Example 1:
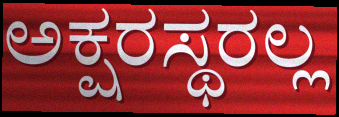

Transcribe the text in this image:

ಅಕ್ಷರಸ್ಥರಲ್ಲ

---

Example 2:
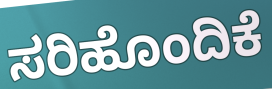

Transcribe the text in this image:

ಸರಿಹೊಂದಿಕೆ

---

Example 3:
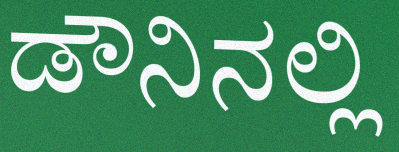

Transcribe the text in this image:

ಡೌನಿನಲ್ಲಿ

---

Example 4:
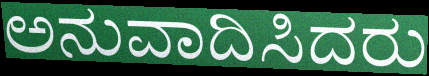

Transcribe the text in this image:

ಅನುವಾದಿಸಿದರು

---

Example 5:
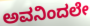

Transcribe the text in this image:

ಅವನಿಂದಲೇ